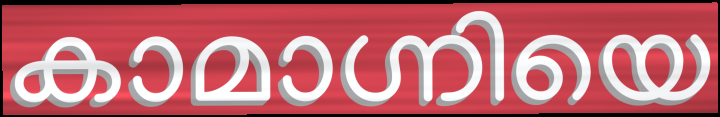
കാമാഗ്നിയെ